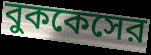
বুককেসের